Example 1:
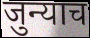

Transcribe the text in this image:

जुन्याच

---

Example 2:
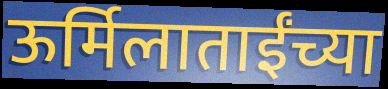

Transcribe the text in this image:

ऊर्मिलाताईंच्या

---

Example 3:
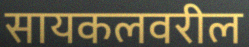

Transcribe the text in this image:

सायकलवरील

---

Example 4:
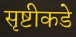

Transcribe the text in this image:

सृष्टीकडे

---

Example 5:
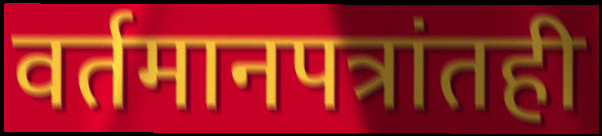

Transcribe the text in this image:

वर्तमानपत्रांतही